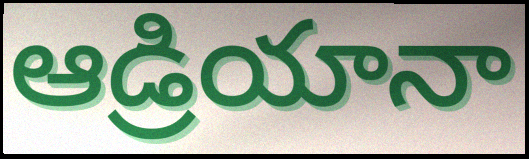
ఆడ్రియానా